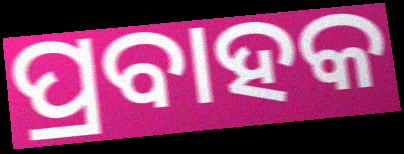
ପ୍ରବାହକ